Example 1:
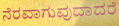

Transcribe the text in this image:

ನೆರವಾಗುವುದಾದರೆ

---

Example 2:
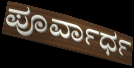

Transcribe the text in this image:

ಪೂರ್ವಾರ್ಧ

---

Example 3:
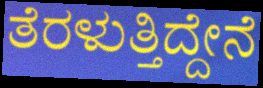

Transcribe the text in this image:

ತೆರಳುತ್ತಿದ್ದೇನೆ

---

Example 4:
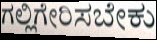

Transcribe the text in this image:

ಗಲ್ಲಿಗೇರಿಸಬೇಕು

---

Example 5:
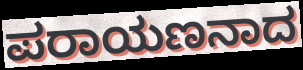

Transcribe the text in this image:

ಪರಾಯಣನಾದ